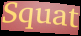
Squat